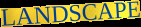
LANDSCAPE